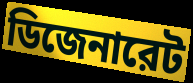
ডিজেনারেট